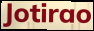
Jotirao